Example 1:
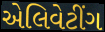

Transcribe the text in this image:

એલિવેટીંગ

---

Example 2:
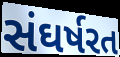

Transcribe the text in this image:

સંઘર્ષરત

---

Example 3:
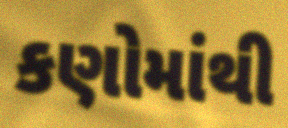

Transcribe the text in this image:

કણોમાંથી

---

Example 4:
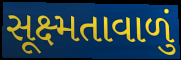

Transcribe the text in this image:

સૂક્ષ્મતાવાળું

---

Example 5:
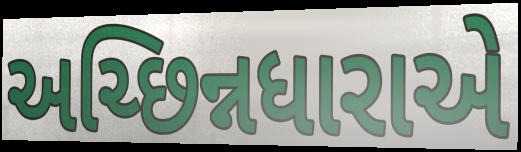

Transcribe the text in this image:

અચ્છિન્નધારાએ